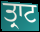
ਤ੍ਰਾਟ